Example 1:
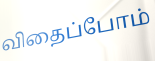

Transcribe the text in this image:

விதைப்போம்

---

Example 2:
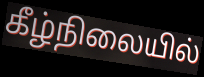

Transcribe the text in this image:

கீழ்நிலையில்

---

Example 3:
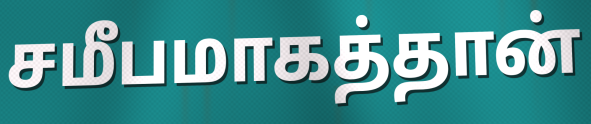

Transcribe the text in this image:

சமீபமாகத்தான்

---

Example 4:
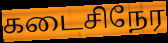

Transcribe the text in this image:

கடைசிநேர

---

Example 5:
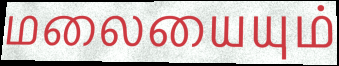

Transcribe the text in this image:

மலையையும்